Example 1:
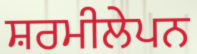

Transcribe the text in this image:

ਸ਼ਰਮੀਲੇਪਨ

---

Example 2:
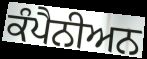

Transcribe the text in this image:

ਕੰਪੈਨੀਅਨ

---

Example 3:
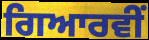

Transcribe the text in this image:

ਗਿਆਰਵੀਂ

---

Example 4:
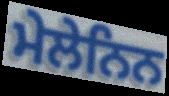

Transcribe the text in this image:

ਮੇਲੇਨਿਨ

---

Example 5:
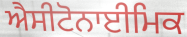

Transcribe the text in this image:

ਐਸੀਟੋਨਾਈਮਿਕ